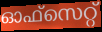
ഓഫ്സെറ്റ്